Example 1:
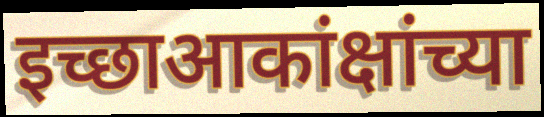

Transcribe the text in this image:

इच्छाआकांक्षांच्या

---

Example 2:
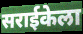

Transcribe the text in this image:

सराईकेला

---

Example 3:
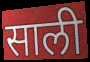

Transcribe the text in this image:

साली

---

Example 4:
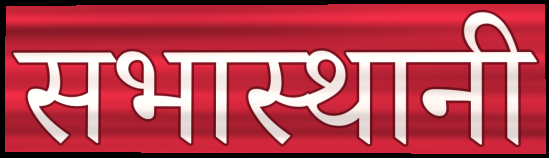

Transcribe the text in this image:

सभास्थानी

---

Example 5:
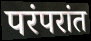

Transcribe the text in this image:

परंपरांत